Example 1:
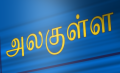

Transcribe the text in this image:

அலகுள்ள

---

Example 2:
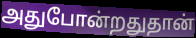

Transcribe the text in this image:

அதுபோன்றதுதான்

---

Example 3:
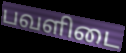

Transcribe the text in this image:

பவளிடை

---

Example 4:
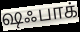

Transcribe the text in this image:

ஷஃபாக்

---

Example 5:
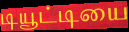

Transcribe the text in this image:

டியூட்டியை